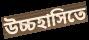
উচ্চহাসিতে